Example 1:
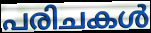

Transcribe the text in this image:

പരിചകൾ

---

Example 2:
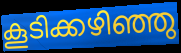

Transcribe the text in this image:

കൂടിക്കഴിഞ്ഞു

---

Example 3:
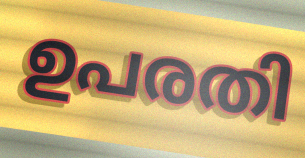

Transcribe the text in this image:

ഉപരതി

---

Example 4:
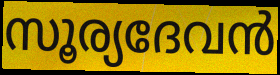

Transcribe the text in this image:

സൂര്യദേവൻ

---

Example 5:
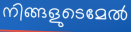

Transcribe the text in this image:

നിങ്ങളുടെമേൽ